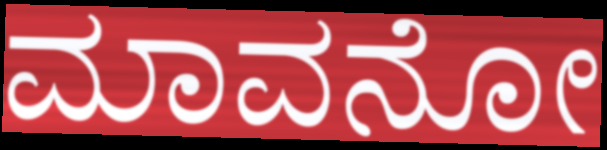
ಮಾವನೋ